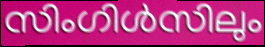
സിംഗിൾസിലും